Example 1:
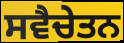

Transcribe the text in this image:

ਸਵੈਚੇਤਨ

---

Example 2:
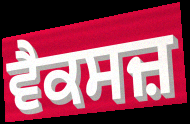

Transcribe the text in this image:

ਵੈਕਸਜ਼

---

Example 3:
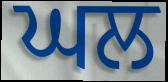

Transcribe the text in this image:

ਘਲ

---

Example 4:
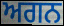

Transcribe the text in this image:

ਅਗਨ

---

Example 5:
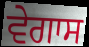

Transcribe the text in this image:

ਵੇਗਾਸ